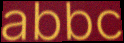
abbc